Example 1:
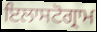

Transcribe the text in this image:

ਇਲਾਸਟੋਗ੍ਰਾਮ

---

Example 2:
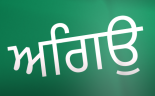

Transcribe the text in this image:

ਅਗਿਉ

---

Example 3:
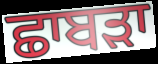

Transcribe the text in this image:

ਛਾਬੜਾ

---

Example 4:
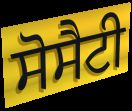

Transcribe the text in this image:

ਸੋਸੈਟੀ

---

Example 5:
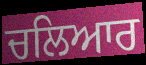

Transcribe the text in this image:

ਚਲਿਆਰ